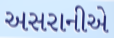
અસરાનીએ